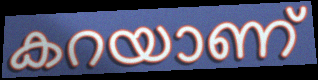
കറയാണ്